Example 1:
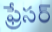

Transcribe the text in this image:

ఫ్రేసర్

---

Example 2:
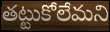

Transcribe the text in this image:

తట్టుకోలేమని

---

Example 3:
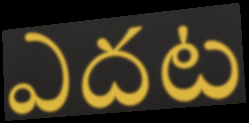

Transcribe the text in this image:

ఎదట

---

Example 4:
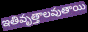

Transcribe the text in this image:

ఇతివృత్తాలవుతాయి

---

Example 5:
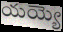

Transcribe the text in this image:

యయ్యె